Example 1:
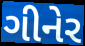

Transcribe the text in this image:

ગીનેર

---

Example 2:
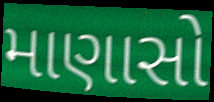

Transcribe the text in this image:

માણાસો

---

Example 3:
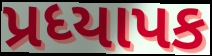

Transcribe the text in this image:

પ્રધ્યાપક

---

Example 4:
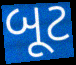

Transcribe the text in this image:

બૂટ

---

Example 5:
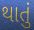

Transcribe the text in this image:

થાતું